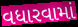
વધારવામાં